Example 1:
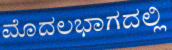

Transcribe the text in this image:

ಮೊದಲಭಾಗದಲ್ಲಿ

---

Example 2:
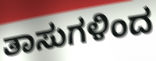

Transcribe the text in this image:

ತಾಸುಗಳಿಂದ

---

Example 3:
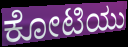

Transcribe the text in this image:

ಕೋಟಿಯು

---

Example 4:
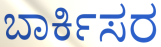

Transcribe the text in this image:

ಬಾರ್ಕಿಸರ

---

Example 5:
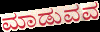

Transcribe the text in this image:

ಮಾಡುವವ